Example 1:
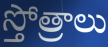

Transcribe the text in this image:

స్తోత్రాలు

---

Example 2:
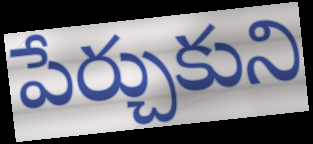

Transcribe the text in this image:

పేర్చుకుని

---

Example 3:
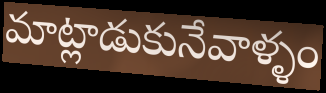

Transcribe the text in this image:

మాట్లాడుకునేవాళ్ళం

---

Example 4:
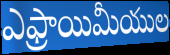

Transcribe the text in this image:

ఎఫ్రాయిమీయుల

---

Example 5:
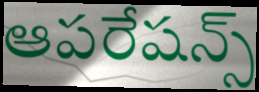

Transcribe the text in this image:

ఆపరేషన్స్